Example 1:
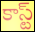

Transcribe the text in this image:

కాస్ట్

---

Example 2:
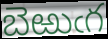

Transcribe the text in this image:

బెఱుఁగ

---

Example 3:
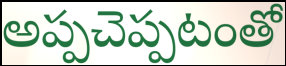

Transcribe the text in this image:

అప్పచెప్పటంతో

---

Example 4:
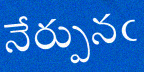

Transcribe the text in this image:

నేర్పునఁ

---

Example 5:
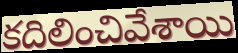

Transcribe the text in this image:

కదిలించివేశాయి